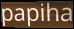
papiha